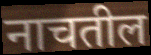
नाचतील